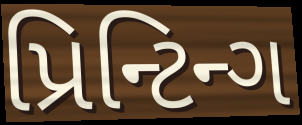
પ્રિન્ટિન્ગ